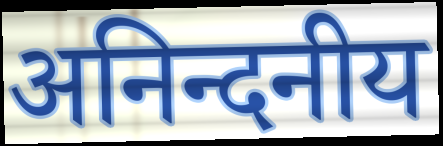
अनिन्दनीय